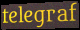
telegraf